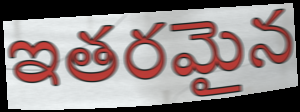
ఇతరమైన